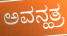
ಅವನ್ಹತ್ರ